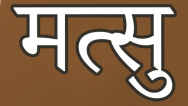
मत्सु